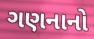
ગણનાનો